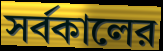
সর্বকালের